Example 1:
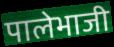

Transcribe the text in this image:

पालेभाजी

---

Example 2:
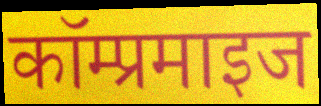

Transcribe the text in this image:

कॉम्प्रमाइज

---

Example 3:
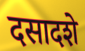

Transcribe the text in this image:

दसादशे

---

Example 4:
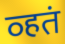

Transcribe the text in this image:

व्हतं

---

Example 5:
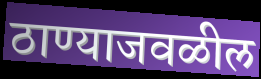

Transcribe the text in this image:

ठाण्याजवळील